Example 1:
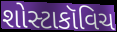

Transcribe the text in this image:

શોસ્ટાકૉવિચ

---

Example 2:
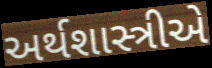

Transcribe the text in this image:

અર્થશાસ્ત્રીએ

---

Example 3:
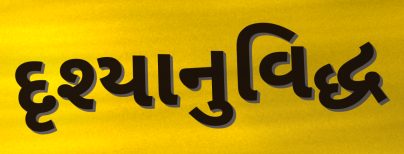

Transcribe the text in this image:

દૃશ્યાનુવિદ્ધ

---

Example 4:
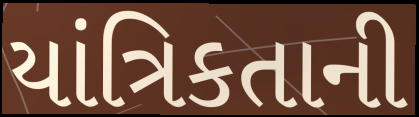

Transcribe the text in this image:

યાંત્રિકતાની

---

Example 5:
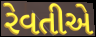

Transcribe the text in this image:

રેવતીએ